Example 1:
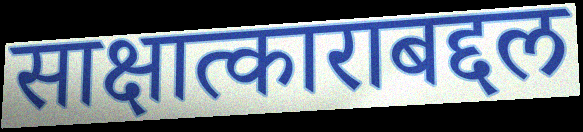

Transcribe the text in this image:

साक्षात्काराबद्दल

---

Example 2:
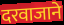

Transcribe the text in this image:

दरवाजाने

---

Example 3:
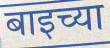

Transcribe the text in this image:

बाइच्या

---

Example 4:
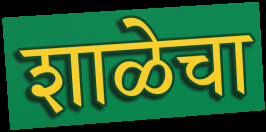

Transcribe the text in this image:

शाळेचा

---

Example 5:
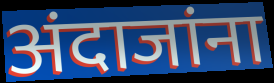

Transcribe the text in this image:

अंदाजांना